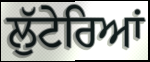
ਲੁੱਟੇਰਿਆਂ